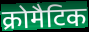
क्रोमैटिक